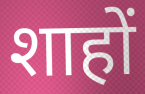
शाहों